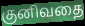
குனிவதை